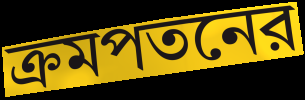
ক্রমপতনের